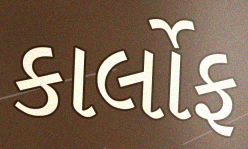
કાર્લોફ